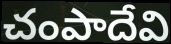
చంపాదేవి